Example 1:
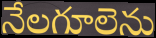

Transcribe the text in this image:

నేలగూలెను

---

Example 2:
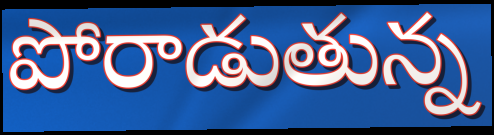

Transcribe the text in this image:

పోరాడుతున్న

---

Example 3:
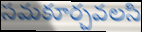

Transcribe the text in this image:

సమకూర్చవలసి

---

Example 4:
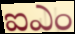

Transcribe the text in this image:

ఐఎం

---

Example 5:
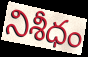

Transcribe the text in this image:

నిశీధం